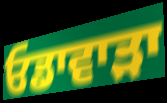
ਓਡਾਵਾੜਾ